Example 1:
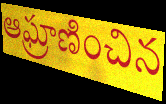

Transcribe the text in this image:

ఆఘ్రాణించిన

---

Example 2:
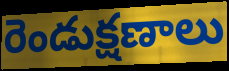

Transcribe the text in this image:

రెండుక్షణాలు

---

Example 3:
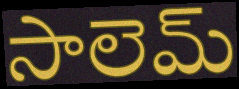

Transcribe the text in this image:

సాలెమ్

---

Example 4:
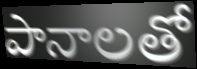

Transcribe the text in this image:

పానాలతో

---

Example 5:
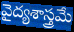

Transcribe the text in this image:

వైద్యశాస్త్రమే